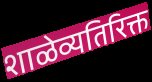
शाळेव्यतिरिक्त